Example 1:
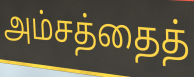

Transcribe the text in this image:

அம்சத்தைத்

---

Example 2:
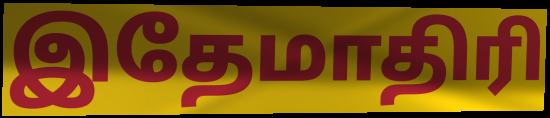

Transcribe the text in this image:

இதேமாதிரி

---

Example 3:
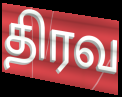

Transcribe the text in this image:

திரவ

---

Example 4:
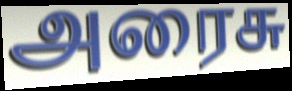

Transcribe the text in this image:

அரைசு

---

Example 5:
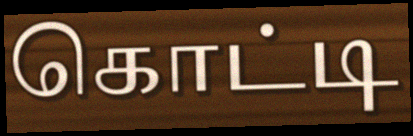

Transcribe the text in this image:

கொட்டி